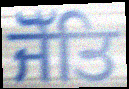
ਜੋੱਤਿ